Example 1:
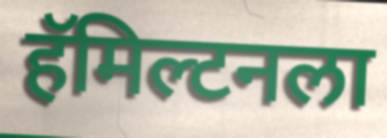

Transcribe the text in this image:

हॅमिल्टनला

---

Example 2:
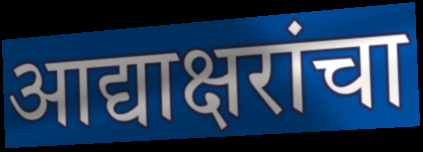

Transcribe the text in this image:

आद्याक्षरांचा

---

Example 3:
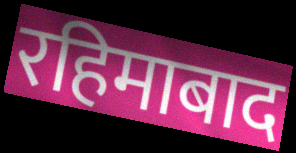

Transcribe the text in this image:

रहिमाबाद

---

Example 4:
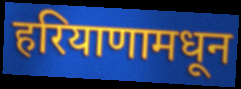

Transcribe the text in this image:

हरियाणामधून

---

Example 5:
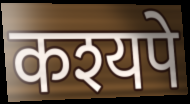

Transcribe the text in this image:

कश्यपे